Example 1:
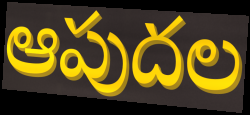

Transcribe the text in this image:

ఆపుదల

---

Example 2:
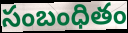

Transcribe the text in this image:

సంబంధితం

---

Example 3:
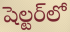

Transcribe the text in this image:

షెల్టర్‌లో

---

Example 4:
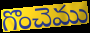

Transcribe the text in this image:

గొంచెము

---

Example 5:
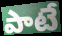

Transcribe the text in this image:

పాటే